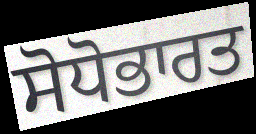
ਸੋਧੋਭਾਰਤ